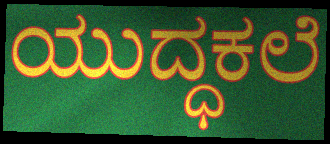
ಯುದ್ಧಕಲೆ